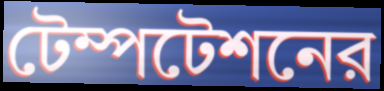
টেম্পটেশনের